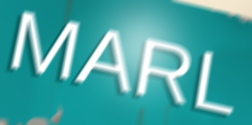
MARL